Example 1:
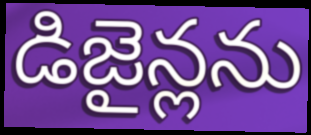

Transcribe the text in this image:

డిజైన్లను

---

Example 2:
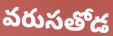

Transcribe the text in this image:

వరుసతోడ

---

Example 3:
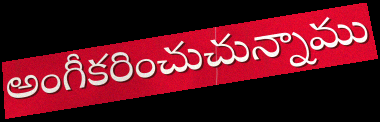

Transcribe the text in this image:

అంగీకరించుచున్నాము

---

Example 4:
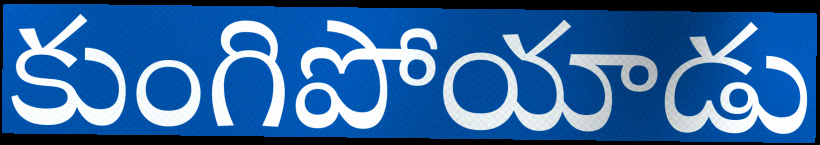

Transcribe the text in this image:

కుంగిపోయాడు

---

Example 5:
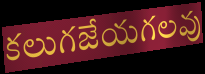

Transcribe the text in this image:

కలుగజేయగలవు